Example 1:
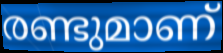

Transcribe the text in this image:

രണ്ടുമാണ്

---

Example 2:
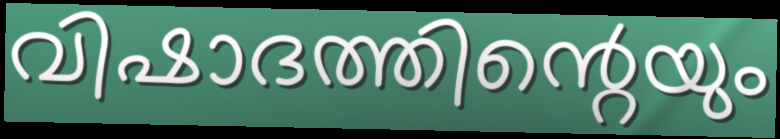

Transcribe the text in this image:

വിഷാദത്തിന്റെയും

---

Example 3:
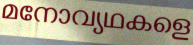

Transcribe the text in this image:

മനോവ്യഥകളെ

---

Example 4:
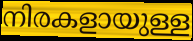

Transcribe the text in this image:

നിരകളായുള്ള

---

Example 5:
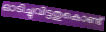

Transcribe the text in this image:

ഓടിച്ചുവിട്ടതുകൊണ്ട്